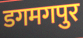
डगमगपुर